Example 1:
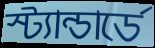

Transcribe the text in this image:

স্ট্যান্ডার্ডে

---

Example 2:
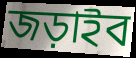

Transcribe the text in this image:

জড়াইব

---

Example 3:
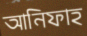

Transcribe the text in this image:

আনিফাহ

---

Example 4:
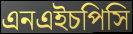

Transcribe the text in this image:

এনএইচপিসি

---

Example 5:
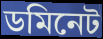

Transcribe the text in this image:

ডমিনেট